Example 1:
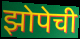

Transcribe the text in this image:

झोपेची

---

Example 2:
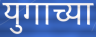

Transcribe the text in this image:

युगाच्या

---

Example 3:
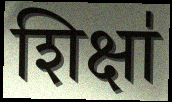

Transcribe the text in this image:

शिक्षा॑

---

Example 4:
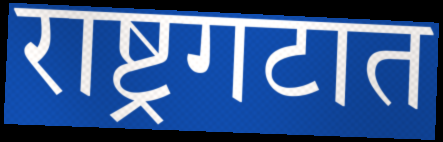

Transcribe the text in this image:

राष्ट्रगटात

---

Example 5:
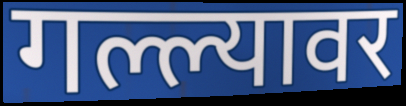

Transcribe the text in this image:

गल्ल्यावर